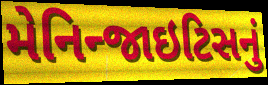
મેનિન્જાઇટિસનું